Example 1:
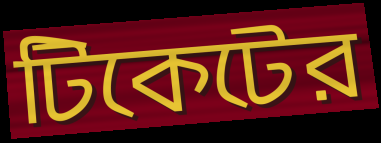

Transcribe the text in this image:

টিকেটের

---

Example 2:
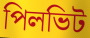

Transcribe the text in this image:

পিলভিট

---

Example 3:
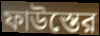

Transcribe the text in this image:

ফাউস্তের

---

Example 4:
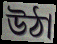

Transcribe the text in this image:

উঠা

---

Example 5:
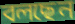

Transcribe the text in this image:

বলছেন